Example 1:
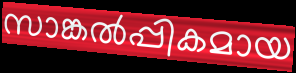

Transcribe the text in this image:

സാങ്കൽപ്പികമായ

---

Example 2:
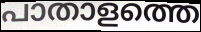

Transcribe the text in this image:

പാതാളത്തെ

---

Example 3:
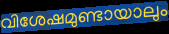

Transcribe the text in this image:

വിശേഷമുണ്ടായാലും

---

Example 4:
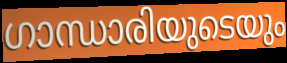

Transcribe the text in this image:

ഗാന്ധാരിയുടെയും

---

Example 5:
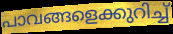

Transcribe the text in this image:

പാവങ്ങളെക്കുറിച്ച്